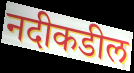
नदीकडील